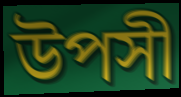
উপসী